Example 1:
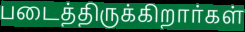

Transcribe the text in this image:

படைத்திருக்கிறார்கள்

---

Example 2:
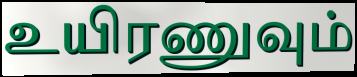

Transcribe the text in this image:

உயிரணுவும்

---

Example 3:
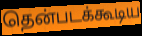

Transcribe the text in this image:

தென்படக்கூடிய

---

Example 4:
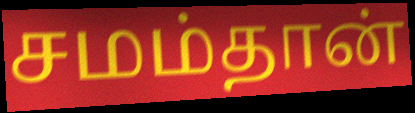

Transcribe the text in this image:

சமம்தான்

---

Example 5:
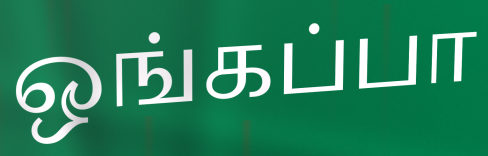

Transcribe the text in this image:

ஒங்கப்பா